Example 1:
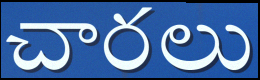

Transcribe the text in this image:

చారలు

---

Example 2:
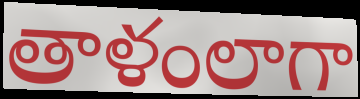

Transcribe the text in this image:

తాళంలాగా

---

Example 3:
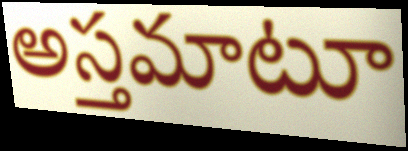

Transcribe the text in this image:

అస్తమాటూ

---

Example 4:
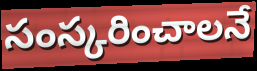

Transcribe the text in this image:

సంస్కరించాలనే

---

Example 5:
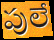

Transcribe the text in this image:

పులే